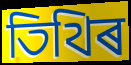
তিথিৰ